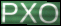
PXO